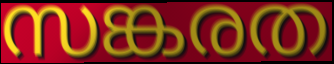
സങ്കരത